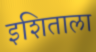
इशिताला